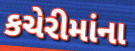
કચેરીમાંના